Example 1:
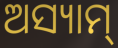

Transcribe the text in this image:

ଅସ୍ୟାମ୍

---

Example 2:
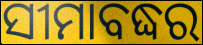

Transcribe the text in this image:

ସୀମାବଦ୍ଧର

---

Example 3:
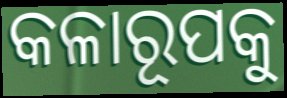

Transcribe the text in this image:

କଳାରୂପକୁ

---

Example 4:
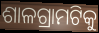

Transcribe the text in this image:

ଶାଳଗ୍ରାମଟିକୁ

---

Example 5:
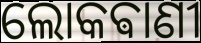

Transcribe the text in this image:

ଲୋକଵାଣୀ